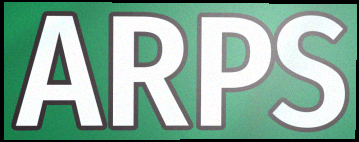
ARPS